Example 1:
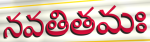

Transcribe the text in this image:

నవతితమః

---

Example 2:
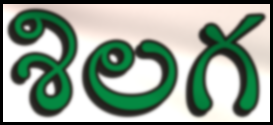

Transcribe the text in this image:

శిలగ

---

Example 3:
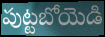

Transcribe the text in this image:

పుట్టబోయెడి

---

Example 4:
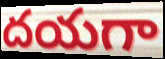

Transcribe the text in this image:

దయగా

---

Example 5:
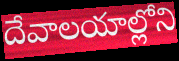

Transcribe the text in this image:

దేవాలయాల్లోని